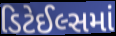
ડિટેઈલ્સમાં